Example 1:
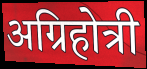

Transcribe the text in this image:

अग्रिहोत्री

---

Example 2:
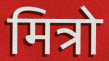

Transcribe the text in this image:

मित्रो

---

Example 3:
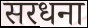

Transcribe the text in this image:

सरधना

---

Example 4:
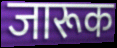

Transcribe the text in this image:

जारूक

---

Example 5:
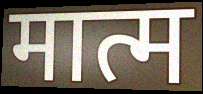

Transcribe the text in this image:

मात्म